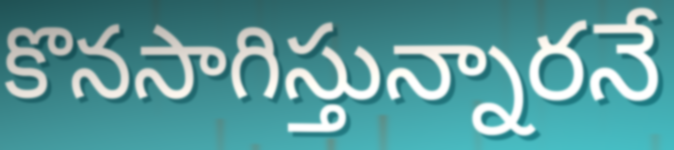
కొనసాగిస్తున్నారనే